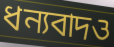
ধন্যবাদও